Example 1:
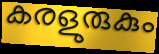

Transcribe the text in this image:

കരളുരുകും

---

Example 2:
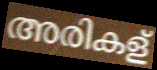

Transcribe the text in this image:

അരികള്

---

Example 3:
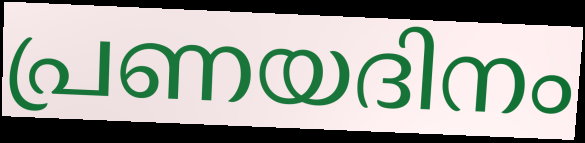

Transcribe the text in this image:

പ്രണയദിനം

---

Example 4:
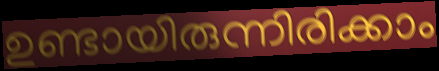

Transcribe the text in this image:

ഉണ്ടായിരുന്നിരിക്കാം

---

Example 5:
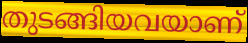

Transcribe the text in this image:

തുടങ്ങിയവയാണ്